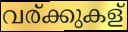
വര്ക്കുകള്